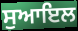
ਸੁਆਇਲ